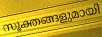
സൂക്തങ്ങളുമായി